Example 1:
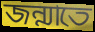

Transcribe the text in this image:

জন্মাতে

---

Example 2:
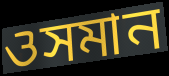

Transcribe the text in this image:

ওসমান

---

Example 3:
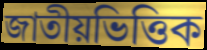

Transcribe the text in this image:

জাতীয়ভিত্তিক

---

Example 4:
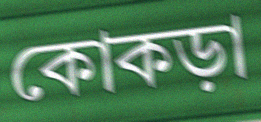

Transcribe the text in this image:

কোকড়া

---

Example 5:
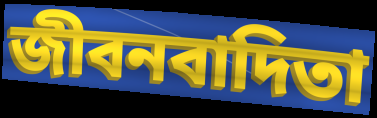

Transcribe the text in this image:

জীবনবাদিতা